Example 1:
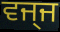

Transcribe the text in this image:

ਵਜ੍ਜ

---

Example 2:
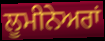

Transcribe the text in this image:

ਲੂਮੀਨੇਅਰਾਂ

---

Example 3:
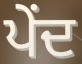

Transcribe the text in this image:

ਪੇਂਦ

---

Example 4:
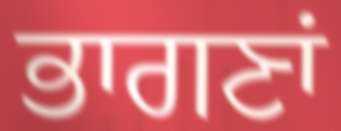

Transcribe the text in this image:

ਭਾਗਣਾਂ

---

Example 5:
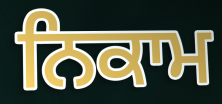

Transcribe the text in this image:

ਨਿਕਾਮ